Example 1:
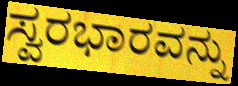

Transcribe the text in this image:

ಸ್ವರಭಾರವನ್ನು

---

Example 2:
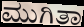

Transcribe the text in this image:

ಮುಗಿತಾ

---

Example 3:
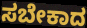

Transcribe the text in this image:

ಸಬೇಕಾದ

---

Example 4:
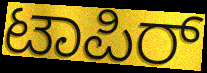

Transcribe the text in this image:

ಟಾಪಿರ್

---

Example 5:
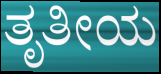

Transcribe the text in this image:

ತೃತೀಯ